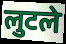
लुटले